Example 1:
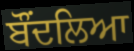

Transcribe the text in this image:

ਬੌਂਦਲਿਆ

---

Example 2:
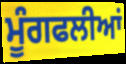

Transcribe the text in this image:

ਮੂੰਗਫਲੀਆਂ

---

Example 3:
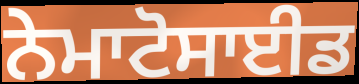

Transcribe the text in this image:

ਨੇਮਾਟੋਸਾਈਡ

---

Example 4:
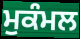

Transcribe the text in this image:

ਮੁਕੰਮਲ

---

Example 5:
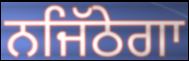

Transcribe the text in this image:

ਨਜਿੱਠੇਗਾ